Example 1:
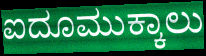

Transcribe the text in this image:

ಐದೂಮುಕ್ಕಾಲು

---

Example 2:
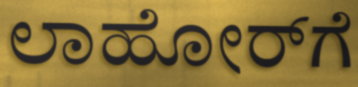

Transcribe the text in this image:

ಲಾಹೋರ್‌ಗೆ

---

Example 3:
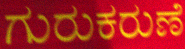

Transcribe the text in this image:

ಗುರುಕರುಣೆ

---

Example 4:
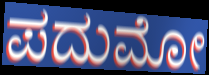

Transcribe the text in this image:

ಪದುಮೋ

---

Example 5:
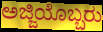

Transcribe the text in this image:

ಅಜ್ಜಿಯೊಬ್ಬರು